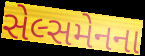
સેલ્સમેનના